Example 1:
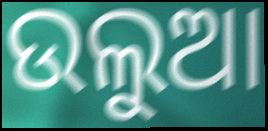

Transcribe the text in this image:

ଉଲୁଆ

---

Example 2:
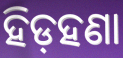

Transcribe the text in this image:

ହିଡ଼ହଣା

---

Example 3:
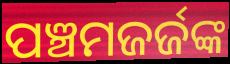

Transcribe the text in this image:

ପଞ୍ଚମଜର୍ଜଙ୍କ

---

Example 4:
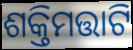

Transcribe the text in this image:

ଶକ୍ତିମତ୍ତାଟି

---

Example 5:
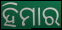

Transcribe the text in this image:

ହିମାର